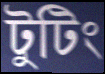
টুটিং